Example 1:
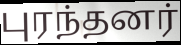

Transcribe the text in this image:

புரந்தனர்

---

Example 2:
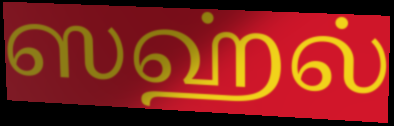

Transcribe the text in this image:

ஸஹ்ல்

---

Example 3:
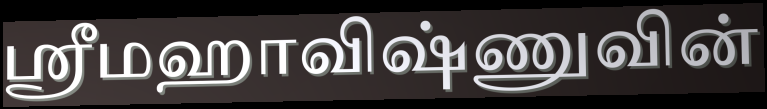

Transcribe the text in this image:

ஸ்ரீமஹாவிஷ்ணுவின்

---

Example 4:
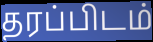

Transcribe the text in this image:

தரப்பிடம்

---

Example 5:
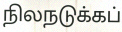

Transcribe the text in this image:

நிலநடுக்கப்